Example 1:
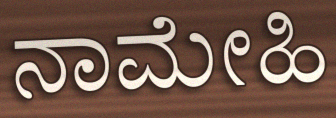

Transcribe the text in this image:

ನಾಮೇಹಿ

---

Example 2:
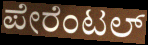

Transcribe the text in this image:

ಪೇರೆಂಟಲ್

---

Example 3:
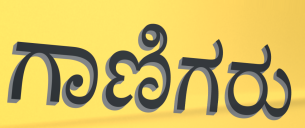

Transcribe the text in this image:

ಗಾಣಿಗರು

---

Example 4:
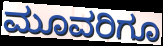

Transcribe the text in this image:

ಮೂವರಿಗೂ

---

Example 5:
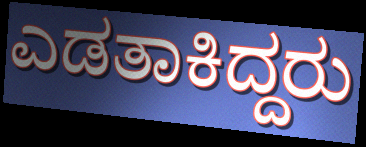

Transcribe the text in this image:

ಎಡತಾಕಿದ್ದರು